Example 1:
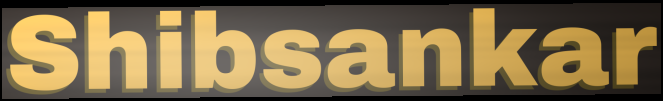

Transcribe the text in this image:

Shibsankar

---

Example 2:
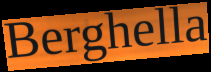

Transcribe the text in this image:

Berghella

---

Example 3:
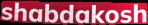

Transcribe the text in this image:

shabdakosh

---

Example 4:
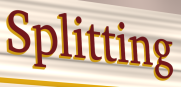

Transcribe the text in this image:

Splitting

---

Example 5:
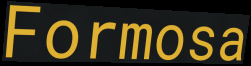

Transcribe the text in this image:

Formosa